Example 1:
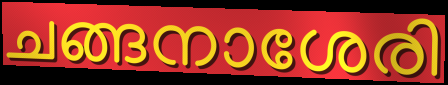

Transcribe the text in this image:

ചങ്ങനാശേരി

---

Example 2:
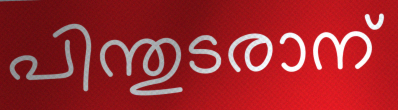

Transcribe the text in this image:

പിന്തുടരാന്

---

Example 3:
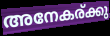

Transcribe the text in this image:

അനേകര്ക്കു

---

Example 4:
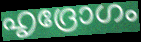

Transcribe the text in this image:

ഹൃദ്രോഗം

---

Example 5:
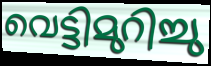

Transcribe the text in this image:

വെട്ടിമുറിച്ചു